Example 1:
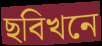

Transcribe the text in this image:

ছবিখনে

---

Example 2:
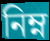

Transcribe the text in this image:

নিম্ন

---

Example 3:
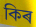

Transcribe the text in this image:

কিৰ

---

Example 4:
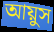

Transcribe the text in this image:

আয়ুস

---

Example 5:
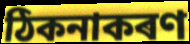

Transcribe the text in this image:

ঠিকনাকৰণ